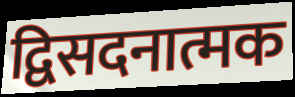
द्विसदनात्मक